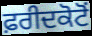
ਫ਼ਰੀਦਕੋਟੋਂ